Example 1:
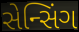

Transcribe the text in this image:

સેન્સિંગ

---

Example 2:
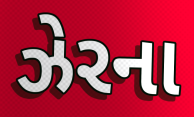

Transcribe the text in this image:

ઝેરના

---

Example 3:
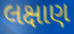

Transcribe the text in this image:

લક્ષાણ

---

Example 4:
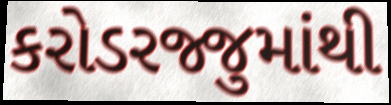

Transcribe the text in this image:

કરોડરજ્જુમાંથી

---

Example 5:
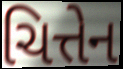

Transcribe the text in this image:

ચિત્તેન